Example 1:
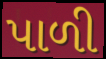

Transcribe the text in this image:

પાળી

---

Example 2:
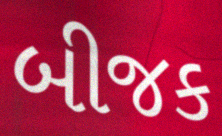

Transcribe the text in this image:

બીજક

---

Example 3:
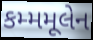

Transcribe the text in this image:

કમ્મમૂલેન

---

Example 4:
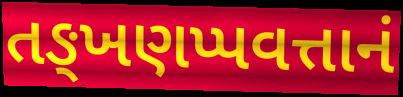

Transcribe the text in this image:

તઙ્ખણપ્પવત્તાનં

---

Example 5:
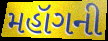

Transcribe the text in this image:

મહૉગની